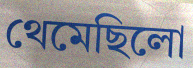
থেমেছিলো